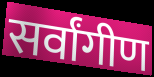
सर्वांगीण